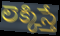
లెక్కిస్తే